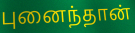
புனைந்தான்